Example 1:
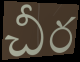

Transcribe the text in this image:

చీర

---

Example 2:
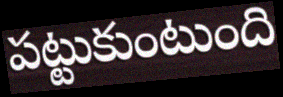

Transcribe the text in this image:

పట్టుకుంటుంది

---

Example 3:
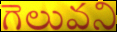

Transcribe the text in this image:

గెలువని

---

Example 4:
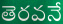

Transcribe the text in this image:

తెరవనే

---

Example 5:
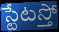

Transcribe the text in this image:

స్టేటస్తో